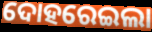
ଦୋହରେଇଲା